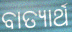
ବାତ୍ୟାର୍ଥ